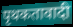
पृथकतावादी